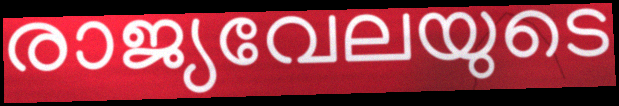
രാജ്യവേലയുടെ